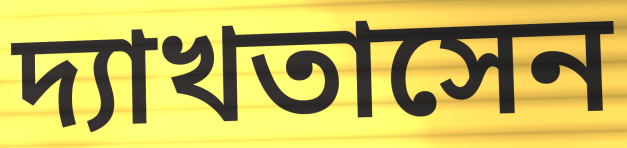
দ্যাখতাসেন